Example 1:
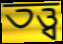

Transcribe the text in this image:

তত্ত্ব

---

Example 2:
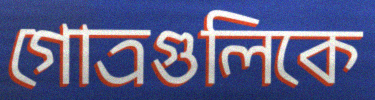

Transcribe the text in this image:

গোত্রগুলিকে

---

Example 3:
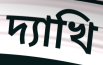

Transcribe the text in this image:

দ্যাখি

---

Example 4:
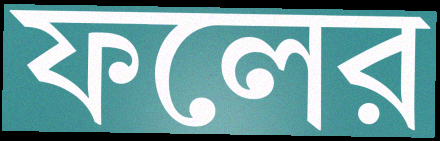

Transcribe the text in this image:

ফলের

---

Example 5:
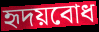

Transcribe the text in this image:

হৃদয়বোধ